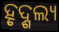
ହୃଦ୍ଶଲ୍ୟ